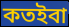
কতইবা